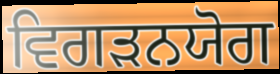
ਵਿਗੜਨਯੋਗ